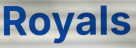
Royals